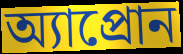
অ্যাপ্রোন